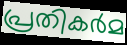
പ്രതികർമ